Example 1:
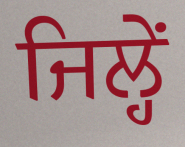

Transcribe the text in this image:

ਜਿਲ੍ਹੇਂ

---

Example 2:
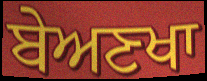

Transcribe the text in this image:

ਬੇਅਣਖਾ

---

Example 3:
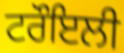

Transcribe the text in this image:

ਟਰੌਇਲੀ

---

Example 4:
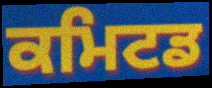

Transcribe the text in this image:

ਕਮਿਟਡ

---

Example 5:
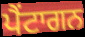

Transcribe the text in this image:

ਪੈਂਟਾਗਨ